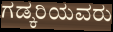
ಗಡ್ಕರಿಯವರು